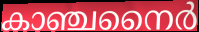
കാഞ്ചനൈർ